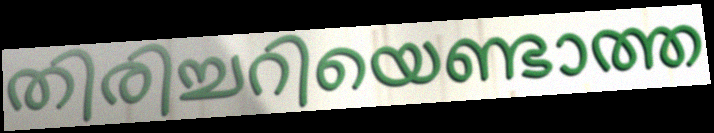
തിരിച്ചറിയെണ്ടാത്ത